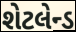
શેટલેન્ડ